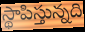
స్థాపిస్తున్నది